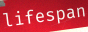
lifespan